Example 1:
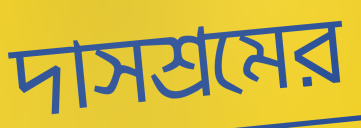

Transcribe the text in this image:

দাসশ্রমের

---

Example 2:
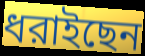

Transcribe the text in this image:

ধরাইছেন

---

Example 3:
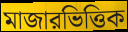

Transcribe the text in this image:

মাজারভিত্তিক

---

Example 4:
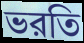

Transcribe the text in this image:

ভরতি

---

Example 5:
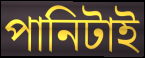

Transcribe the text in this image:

পানিটাই